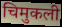
चिमुकली